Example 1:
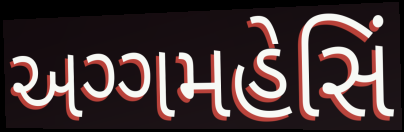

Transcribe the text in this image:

અગ્ગમહેસિં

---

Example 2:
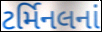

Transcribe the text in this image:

ટર્મિનલનાં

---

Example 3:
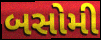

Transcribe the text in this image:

બસોમી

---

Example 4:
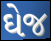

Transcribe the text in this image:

ઘેજ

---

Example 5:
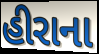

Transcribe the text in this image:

હીરાના